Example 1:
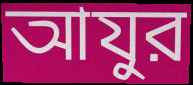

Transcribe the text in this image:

আযুর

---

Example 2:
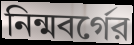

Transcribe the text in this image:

নিন্মবর্গের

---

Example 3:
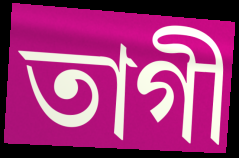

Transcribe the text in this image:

তাগী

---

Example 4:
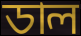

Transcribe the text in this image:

ডাল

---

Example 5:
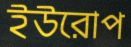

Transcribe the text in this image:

ইউরোপ